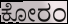
ಕೋರಂ